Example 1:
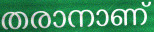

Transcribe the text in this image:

തരാനാണ്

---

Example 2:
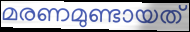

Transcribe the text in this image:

മരണമുണ്ടായത്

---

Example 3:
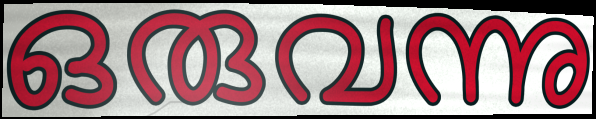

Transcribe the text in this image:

ഒരുവന്നു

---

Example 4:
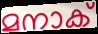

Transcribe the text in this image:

മനാക്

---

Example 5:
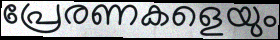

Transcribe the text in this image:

പ്രേരണകളെയും